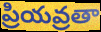
ప్రియవ్రతా